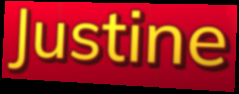
Justine